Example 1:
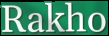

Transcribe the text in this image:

Rakho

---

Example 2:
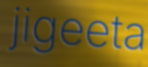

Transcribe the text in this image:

jigeeta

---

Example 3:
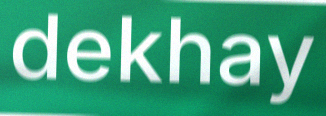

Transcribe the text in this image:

dekhay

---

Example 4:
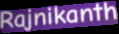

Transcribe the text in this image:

Rajnikanth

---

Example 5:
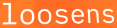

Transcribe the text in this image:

loosens